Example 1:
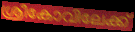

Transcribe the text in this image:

ശ്രീകോവിലേക്ക്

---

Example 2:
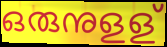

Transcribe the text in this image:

ഒരുനുളള്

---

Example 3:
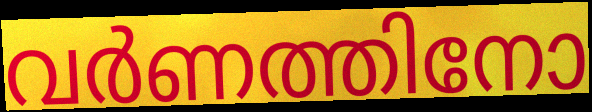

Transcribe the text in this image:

വർണത്തിനോ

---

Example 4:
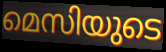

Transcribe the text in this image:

മെസിയുടെ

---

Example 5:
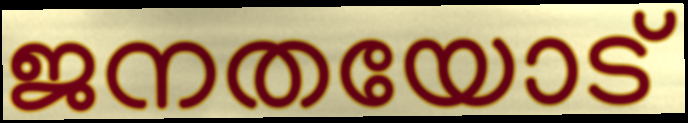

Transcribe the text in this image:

ജനതയോട്